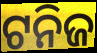
ଟନିଜ